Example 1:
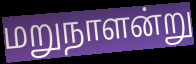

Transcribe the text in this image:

மறுநாளன்று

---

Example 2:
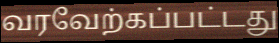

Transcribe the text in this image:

வரவேற்கப்பட்டது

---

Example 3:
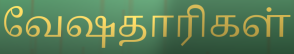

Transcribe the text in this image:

வேஷதாரிகள்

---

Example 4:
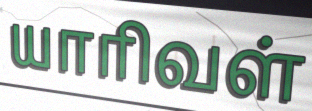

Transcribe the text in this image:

யாரிவள்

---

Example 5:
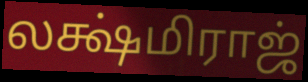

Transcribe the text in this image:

லக்ஷ்மிராஜ்